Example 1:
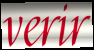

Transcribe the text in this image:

verir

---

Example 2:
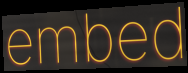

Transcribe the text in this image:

embed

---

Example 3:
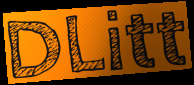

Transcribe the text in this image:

DLitt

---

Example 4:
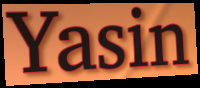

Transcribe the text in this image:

Yasin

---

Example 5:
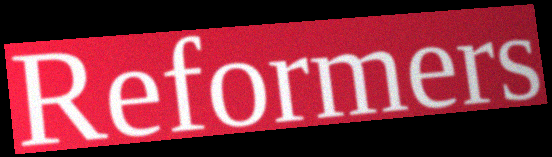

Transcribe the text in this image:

Reformers